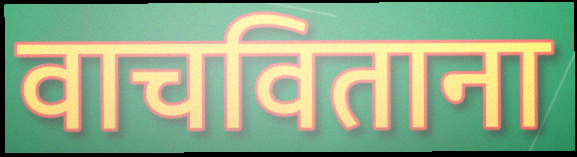
वाचविताना